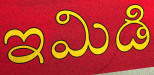
ఇమిడి